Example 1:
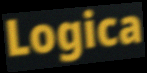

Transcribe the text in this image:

Logica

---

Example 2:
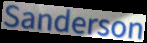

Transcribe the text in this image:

Sanderson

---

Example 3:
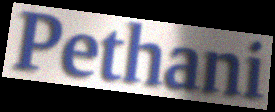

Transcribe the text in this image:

Pethani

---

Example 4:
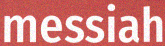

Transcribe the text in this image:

messiah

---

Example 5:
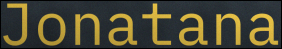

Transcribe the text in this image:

Jonatana